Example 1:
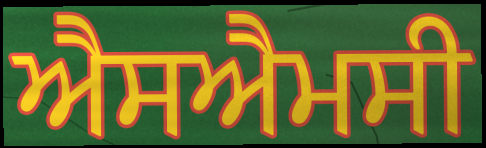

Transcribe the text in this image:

ਐਸਐਮਸੀ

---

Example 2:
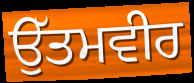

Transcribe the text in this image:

ਉੱਤਮਵੀਰ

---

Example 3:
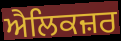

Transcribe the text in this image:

ਐਲਿਕਜ਼ਰ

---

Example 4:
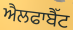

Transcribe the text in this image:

ਐਲਫਾਬੈੱਟ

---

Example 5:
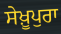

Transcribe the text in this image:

ਸੇਖ਼ੂਪੁਰਾ